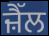
ਜ਼ੈੱਲ